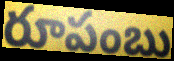
రూపంబు